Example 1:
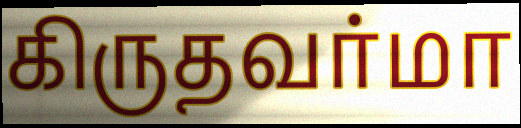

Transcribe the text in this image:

கிருதவர்மா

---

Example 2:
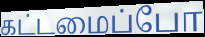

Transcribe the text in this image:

கட்டமைப்போ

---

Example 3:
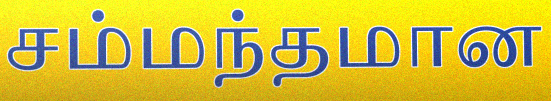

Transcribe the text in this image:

சம்மந்தமான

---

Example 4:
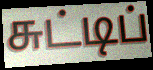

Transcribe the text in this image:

சுட்டிப்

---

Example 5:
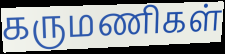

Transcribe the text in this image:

கருமணிகள்